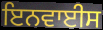
ਇਨਵਾਈਸ